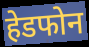
हेडफोन